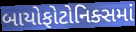
બાયોફોટોનિક્સમાં